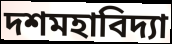
দশমহাবিদ্যা